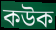
কউক